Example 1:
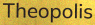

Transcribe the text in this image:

Theopolis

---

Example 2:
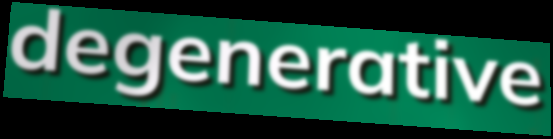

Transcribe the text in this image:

degenerative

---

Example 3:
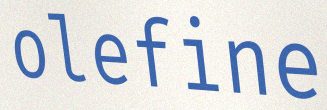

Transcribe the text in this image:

olefine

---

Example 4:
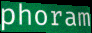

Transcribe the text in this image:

phoram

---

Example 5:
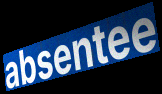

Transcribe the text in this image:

absentee